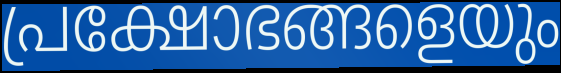
പ്രക്ഷോഭങ്ങളെയും